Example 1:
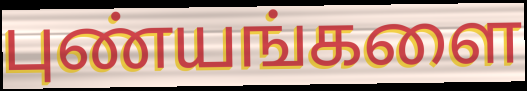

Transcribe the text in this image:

புண்யங்களை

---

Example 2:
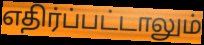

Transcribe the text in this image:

எதிர்ப்பட்டாலும்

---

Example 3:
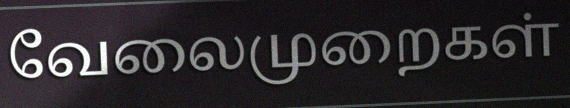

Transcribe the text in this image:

வேலைமுறைகள்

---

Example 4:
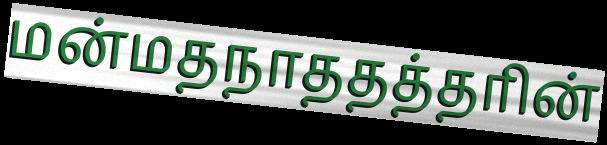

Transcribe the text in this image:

மன்மதநாததத்தரின்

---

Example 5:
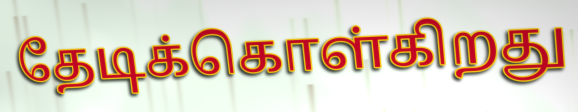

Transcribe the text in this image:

தேடிக்கொள்கிறது